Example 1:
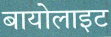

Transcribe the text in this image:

बायोलाइट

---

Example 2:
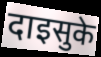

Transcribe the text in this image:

दाइसुके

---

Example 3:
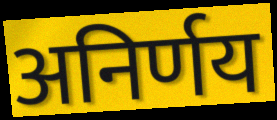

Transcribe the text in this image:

अनिर्णय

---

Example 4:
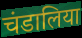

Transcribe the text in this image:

चंडालिया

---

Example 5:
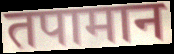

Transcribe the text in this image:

तपामान